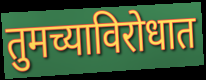
तुमच्याविरोधात